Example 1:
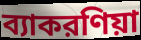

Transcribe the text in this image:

ব্যাকরণিয়া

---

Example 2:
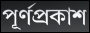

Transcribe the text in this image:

পূর্ণপ্রকাশ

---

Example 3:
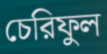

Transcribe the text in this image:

চেরিফুল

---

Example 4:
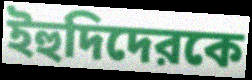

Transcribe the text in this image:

ইহুদিদেরকে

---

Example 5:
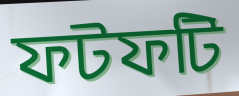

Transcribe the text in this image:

ফটফটি